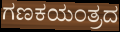
ಗಣಕಯಂತ್ರದ